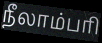
நீலாம்பரி